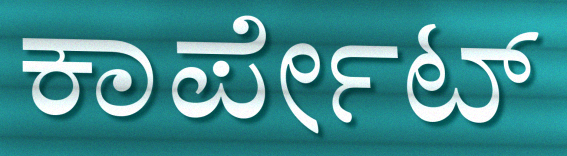
ಕಾರ್ಪೇಟ್